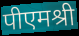
पीएमश्री